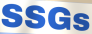
SSGs